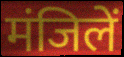
मंजिलें